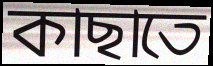
কাছাতে